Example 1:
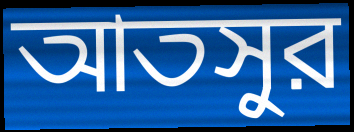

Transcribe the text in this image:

আতসুর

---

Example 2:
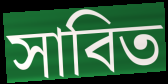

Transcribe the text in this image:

সাবিত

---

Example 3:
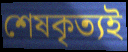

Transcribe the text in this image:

শেষকৃত্যই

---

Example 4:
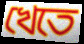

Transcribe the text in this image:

খেতে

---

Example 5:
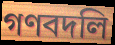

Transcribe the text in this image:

গণবদলি